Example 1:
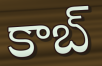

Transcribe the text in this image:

కాబ్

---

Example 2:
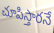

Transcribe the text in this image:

చూపిస్తారనే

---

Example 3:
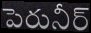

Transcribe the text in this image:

పెరునీర్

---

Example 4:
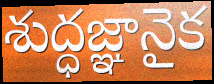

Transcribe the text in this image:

శుద్ధజ్ఞానైక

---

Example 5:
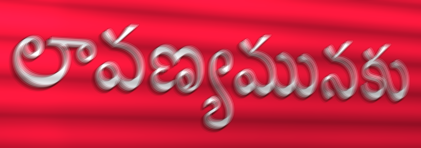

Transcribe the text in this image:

లావణ్యమునకు